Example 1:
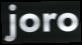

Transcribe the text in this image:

joro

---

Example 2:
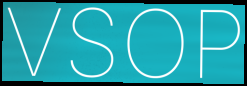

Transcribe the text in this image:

VSOP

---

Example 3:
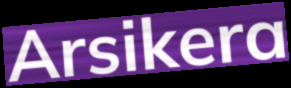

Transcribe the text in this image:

Arsikera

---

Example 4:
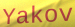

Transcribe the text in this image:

Yakov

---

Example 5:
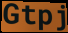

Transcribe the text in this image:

Gtpj